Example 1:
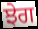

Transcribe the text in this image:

ਝੇਗ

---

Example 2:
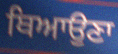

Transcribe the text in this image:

ਥਿਆਉਣਾ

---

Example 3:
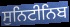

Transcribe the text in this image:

ਸੁਨਿਟੀਨਿਬ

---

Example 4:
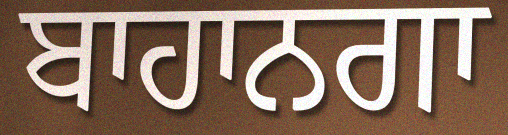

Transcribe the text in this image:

ਬਾਹਾਨਗਾ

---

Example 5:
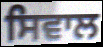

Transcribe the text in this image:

ਸਿਵਾਲ